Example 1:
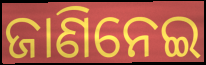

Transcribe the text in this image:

ଜାଣିନେଇ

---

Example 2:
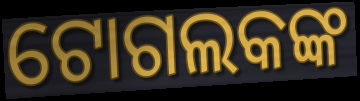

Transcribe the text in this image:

ଟୋଗଲକଙ୍କ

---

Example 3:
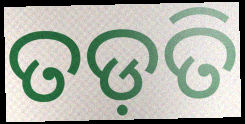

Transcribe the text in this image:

ତଡ଼ତି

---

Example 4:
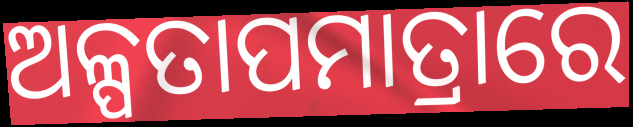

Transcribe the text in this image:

ଅଳ୍ପତାପମାତ୍ରାରେ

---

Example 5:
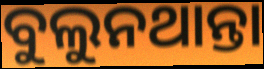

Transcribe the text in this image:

ବୁଲୁନଥାନ୍ତା